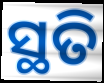
ସ୍ଥତି